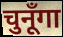
चुनूँगा